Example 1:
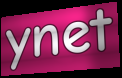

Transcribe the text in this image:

ynet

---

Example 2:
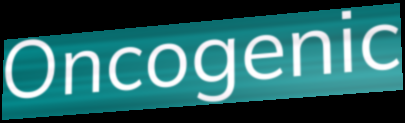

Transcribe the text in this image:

Oncogenic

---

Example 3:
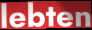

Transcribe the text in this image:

lebten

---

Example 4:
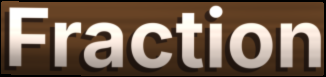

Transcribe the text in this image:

Fraction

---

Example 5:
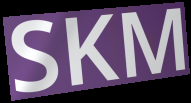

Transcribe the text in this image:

SKM